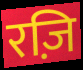
रज़ि